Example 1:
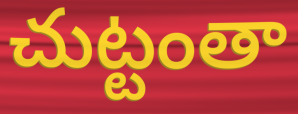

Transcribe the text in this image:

చుట్టంతా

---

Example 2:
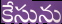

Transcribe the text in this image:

కేసును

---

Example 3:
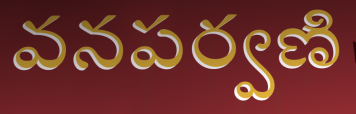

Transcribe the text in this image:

వనపర్వణి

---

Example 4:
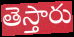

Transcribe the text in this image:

తెస్తారు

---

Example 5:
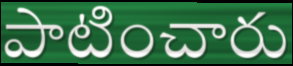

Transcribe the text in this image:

పాటించారు